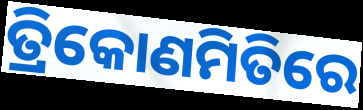
ତ୍ରିକୋଣମିତିରେ